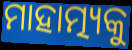
ମାହାତ୍ମ୍ୟକୁ